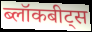
ब्लॉकबीट्स